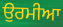
ਉਰਮੀਆ